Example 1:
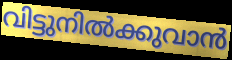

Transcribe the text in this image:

വിട്ടുനിൽക്കുവാൻ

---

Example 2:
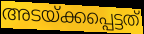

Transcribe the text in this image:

അടയ്ക്കപ്പെട്ടത്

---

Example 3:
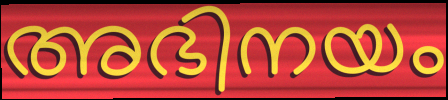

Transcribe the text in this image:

അഭിനയം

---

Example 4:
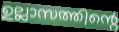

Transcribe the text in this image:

ഉല്ലാസത്തിന്റെ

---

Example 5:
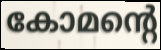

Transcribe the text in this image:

കോമന്റെ